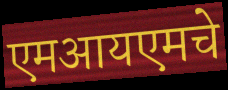
एमआयएमचे